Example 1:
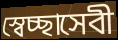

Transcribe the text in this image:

স্বেচ্ছাসেবী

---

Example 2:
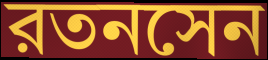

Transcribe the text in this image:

রতনসেন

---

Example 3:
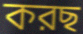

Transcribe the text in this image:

করছ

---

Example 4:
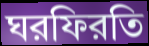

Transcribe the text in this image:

ঘরফিরতি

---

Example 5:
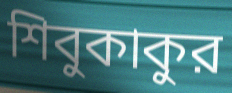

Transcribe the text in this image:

শিবুকাকুর